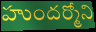
హుందర్మోని